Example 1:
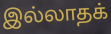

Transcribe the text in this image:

இல்லாதக்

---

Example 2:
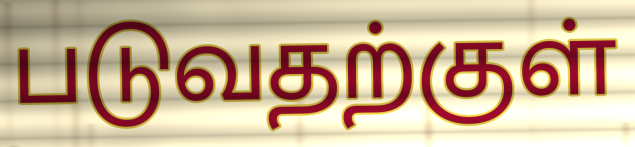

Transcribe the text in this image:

படுவதற்குள்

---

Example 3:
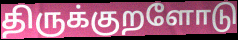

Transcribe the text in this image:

திருக்குறளோடு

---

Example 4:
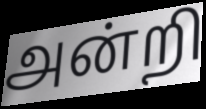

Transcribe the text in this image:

அன்றி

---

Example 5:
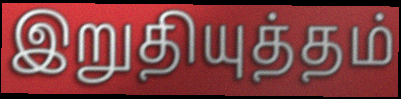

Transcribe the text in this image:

இறுதியுத்தம்